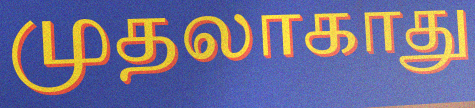
முதலாகாது